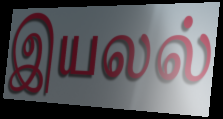
இயலல்